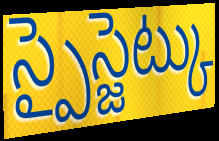
స్పైస్జెట్కు